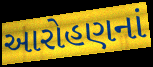
આરોહણનાં